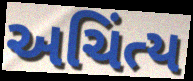
અચિંત્ય